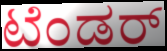
ಟೆಂಡರ್